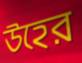
উহের